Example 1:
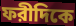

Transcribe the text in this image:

ফরীদিকে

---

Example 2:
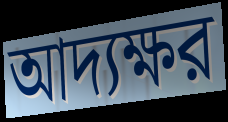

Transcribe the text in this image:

আদ্যক্ষর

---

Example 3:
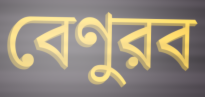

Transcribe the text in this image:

বেণুরব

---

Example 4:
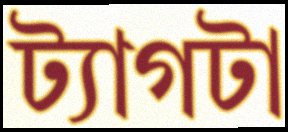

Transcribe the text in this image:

ট্যাগটা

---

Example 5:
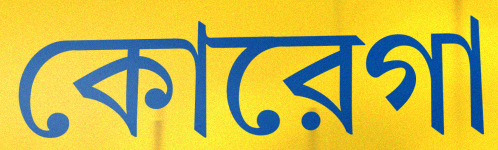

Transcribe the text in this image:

কোরেগা